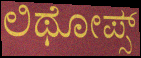
ಲಿಥೋಪ್ಸ್